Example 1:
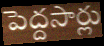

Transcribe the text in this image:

పెద్దసార్లు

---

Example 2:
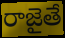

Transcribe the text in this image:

రాజైతే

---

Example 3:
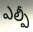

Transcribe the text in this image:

ఎల్పీ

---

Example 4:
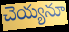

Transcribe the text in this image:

చెయ్యనూ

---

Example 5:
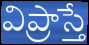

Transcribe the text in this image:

విప్రాస్తే